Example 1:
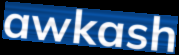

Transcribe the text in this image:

awkash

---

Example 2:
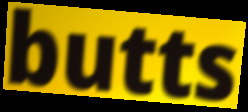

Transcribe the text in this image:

butts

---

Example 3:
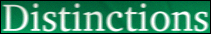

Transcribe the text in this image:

Distinctions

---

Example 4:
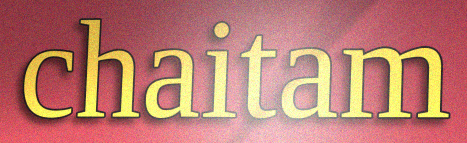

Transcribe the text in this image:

chaitam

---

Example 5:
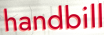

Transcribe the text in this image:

handbill